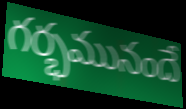
గర్భమునందే